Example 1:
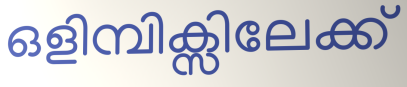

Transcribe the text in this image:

ഒളിമ്പിക്സിലേക്ക്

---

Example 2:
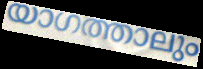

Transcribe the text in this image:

യാഗത്താലും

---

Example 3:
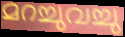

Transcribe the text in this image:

മറച്ചുവച്ചു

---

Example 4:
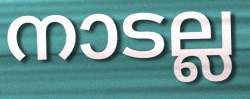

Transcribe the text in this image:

നാടല്ല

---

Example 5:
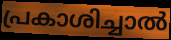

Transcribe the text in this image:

പ്രകാശിച്ചാൽ